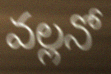
వల్లనో